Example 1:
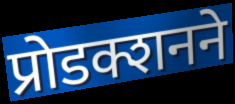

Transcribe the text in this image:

प्रोडक्शनने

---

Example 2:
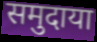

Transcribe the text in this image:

समुदाया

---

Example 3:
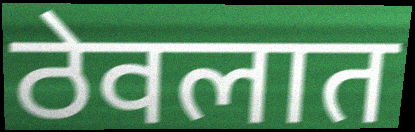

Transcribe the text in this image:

ठेवलात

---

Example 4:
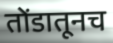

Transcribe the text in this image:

तोंडातूनच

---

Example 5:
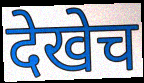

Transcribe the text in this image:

देखेच